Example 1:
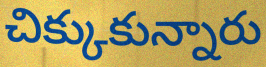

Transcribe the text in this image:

చిక్కుకున్నారు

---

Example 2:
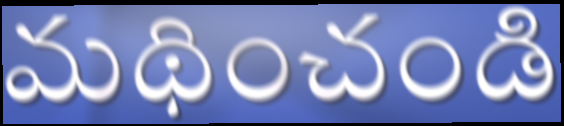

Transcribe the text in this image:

మథించండి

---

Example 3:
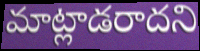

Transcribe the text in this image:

మాట్లాడరాదని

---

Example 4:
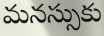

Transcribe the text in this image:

మనస్సుకు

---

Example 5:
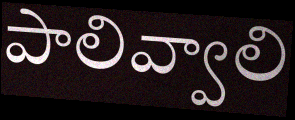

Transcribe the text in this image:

పాలివ్వాలి